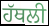
ਹੱਥਲੀ